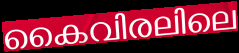
കൈവിരലിലെ